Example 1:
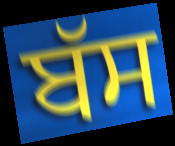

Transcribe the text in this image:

ਬੱਸ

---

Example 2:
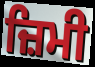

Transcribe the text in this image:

ਜ਼ਿਮੀ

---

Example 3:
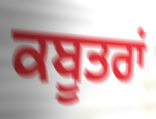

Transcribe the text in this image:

ਕਬੂਤਰਾਂ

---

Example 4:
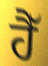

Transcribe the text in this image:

ਹੈੱ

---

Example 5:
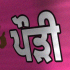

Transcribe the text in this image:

ਪੌੜੀ